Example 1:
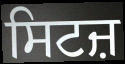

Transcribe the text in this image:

ਸਿਟਜ਼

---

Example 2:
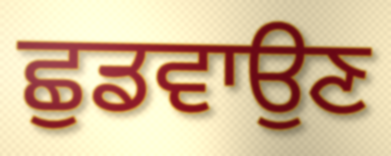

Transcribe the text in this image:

ਛੁਡਵਾਉਣ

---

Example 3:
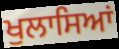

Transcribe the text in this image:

ਖੁਲਾਸਿਆਂ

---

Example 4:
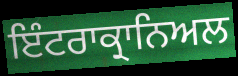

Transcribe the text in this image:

ਇੰਟਰਾਕ੍ਰਾਨਿਅਲ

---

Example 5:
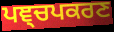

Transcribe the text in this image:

ਪਞ੍ਚਪਕਰਣ